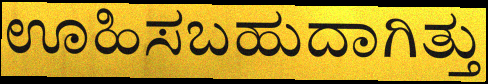
ಊಹಿಸಬಹುದಾಗಿತ್ತು